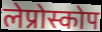
लेप्रोस्कोप